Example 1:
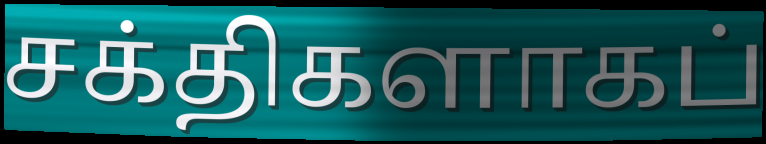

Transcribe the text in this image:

சக்திகளாகப்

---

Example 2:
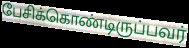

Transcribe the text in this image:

பேசிக்கொண்டிருப்பவர்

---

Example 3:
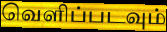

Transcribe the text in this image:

வெளிப்படவும்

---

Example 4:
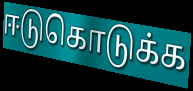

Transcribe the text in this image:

ஈடுகொடுக்க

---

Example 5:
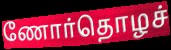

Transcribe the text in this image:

ணோர்தொழச்